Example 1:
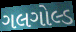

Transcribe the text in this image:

ગલગોલ્ડ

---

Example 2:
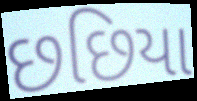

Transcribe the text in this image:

છછિયા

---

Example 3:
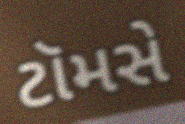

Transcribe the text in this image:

ટૉમસે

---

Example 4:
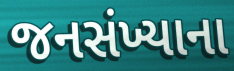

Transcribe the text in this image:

જનસંખ્યાના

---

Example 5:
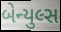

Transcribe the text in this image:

બેન્યુલ્સ